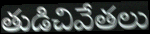
తుడిచివేతలు